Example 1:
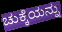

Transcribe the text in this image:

ಚುಕ್ಕೆಯನ್ನು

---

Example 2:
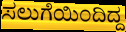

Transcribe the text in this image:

ಸಲುಗೆಯಿಂದಿದ್ದ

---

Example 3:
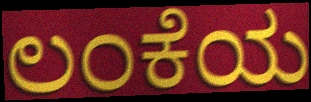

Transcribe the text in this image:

ಲಂಕೆಯ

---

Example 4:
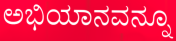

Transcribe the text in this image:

ಅಭಿಯಾನವನ್ನೂ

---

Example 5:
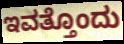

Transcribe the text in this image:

ಇವತ್ತೊಂದು